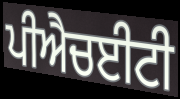
ਪੀਐਚਈਟੀ